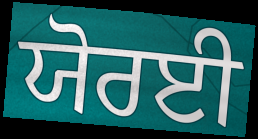
ਯੋਰਈ